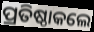
ପ୍ରତିଷ୍ଠାକଲେ